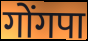
गोंगपा